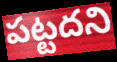
పట్టదని